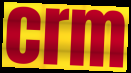
crm